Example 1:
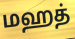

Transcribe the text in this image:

மஹத்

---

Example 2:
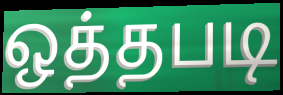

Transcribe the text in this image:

ஒத்தபடி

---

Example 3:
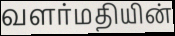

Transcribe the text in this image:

வளர்மதியின்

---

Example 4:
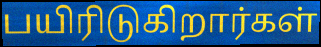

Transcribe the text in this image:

பயிரிடுகிறார்கள்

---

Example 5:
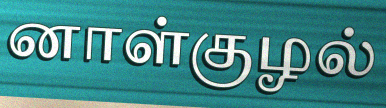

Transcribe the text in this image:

னாள்குழல்